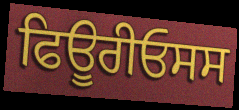
ਫਿਊਰੀਓਸਸ